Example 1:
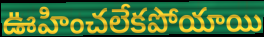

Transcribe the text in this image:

ఊహించలేకపోయాయి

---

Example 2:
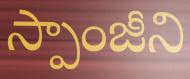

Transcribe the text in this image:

స్పాంజీని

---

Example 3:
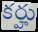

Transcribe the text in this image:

కర్హు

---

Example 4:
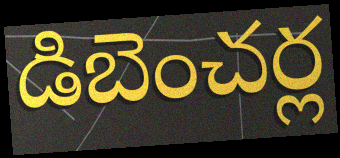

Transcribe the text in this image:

డిబెంచర్ల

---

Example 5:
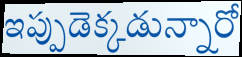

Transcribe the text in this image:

ఇప్పుడెక్కడున్నారో